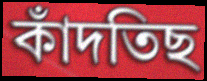
কাঁদতিছ